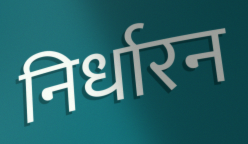
निर्धारन